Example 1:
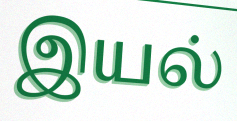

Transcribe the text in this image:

இயல்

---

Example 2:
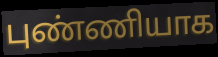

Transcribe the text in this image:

புண்ணியாக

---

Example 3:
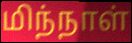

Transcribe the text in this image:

மிந்நாள்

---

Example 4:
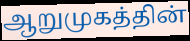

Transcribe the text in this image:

ஆறுமுகத்தின்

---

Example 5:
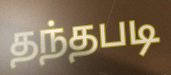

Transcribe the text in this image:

தந்தபடி